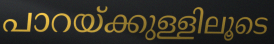
പാറയ്ക്കുള്ളിലൂടെ